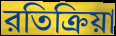
রতিক্রিয়া